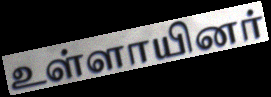
உள்ளாயினர்